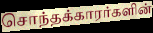
சொந்தக்காரர்களின்